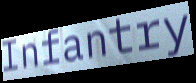
Infantry